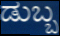
ಡುಬ್ಬ